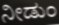
ನೀಡುಂ